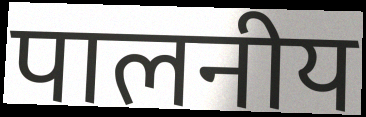
पालनीय